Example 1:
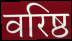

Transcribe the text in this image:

वरिष्ठ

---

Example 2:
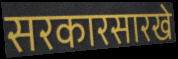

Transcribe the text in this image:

सरकारसारखे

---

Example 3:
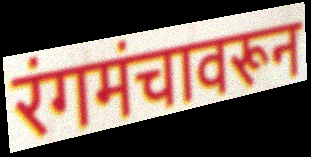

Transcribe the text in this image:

रंगमंचावरून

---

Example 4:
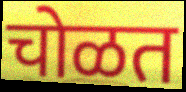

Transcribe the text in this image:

चोळत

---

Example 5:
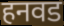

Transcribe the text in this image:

हनवड